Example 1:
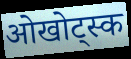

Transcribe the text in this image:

ओखोट्स्क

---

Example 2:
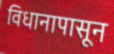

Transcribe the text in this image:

विधानापासून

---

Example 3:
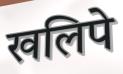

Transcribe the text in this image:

खलिपे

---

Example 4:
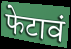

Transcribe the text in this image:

फेटावं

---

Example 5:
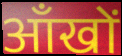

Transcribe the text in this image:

आँखों